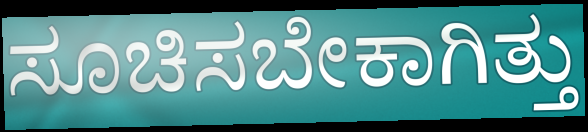
ಸೂಚಿಸಬೇಕಾಗಿತ್ತು